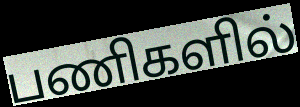
பணிகளில்